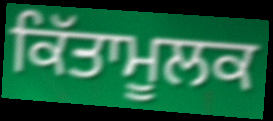
ਕਿੱਤਾਮੂਲਕ